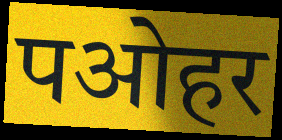
पओहर